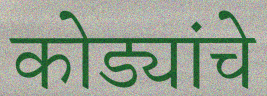
कोड्यांचे